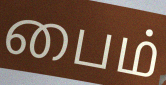
பைம்